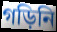
গড়িনি